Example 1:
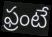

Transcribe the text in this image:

ఫ్రంటే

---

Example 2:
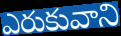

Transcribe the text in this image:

ఎరుకువాని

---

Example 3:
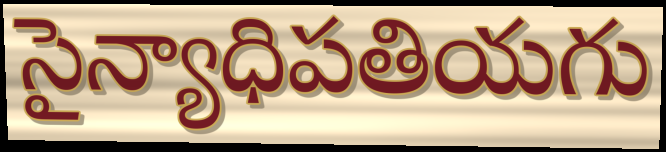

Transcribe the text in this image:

సైన్యాధిపతియగు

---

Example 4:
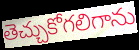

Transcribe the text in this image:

తెచ్చుకోగలిగాను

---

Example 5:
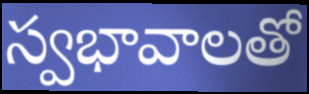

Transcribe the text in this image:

స్వభావాలతో